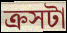
ক্রসটা